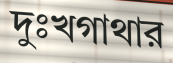
দুঃখগাথার